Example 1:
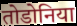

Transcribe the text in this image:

तोडोनिया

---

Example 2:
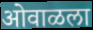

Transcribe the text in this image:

ओवाळला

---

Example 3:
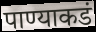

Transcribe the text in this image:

पाण्याकडं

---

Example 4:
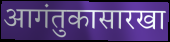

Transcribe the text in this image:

आगंतुकासारखा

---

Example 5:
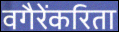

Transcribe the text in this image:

वगैरेंकरिता